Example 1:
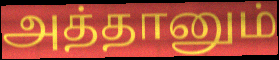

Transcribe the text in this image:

அத்தானும்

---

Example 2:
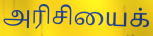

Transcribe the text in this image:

அரிசியைக்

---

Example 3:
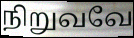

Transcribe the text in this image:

நிறுவவே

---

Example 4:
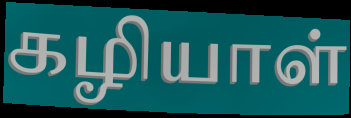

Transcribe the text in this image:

கழியாள்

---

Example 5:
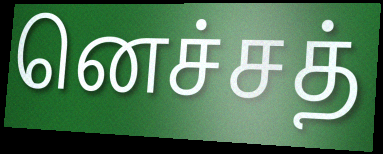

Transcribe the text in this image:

னெச்சத்